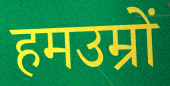
हमउम्रों